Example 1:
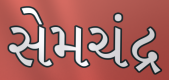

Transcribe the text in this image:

સેમચંદ્ર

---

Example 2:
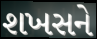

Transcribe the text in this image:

શખસને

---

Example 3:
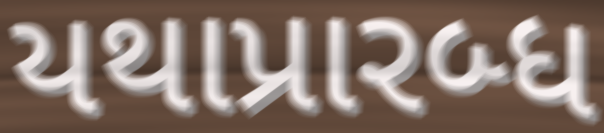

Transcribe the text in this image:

યથાપ્રારબ્ધ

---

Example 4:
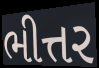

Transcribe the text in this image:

ભીત્તર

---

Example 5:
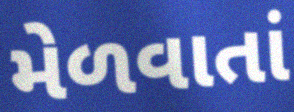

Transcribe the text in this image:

મેળવાતાં